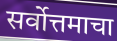
सर्वोत्तमाचा